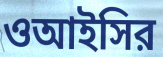
ওআইসির